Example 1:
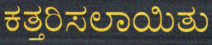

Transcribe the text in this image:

ಕತ್ತರಿಸಲಾಯಿತು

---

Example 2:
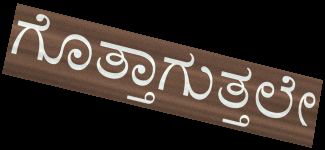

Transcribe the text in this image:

ಗೊತ್ತಾಗುತ್ತಲೇ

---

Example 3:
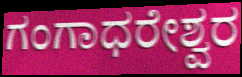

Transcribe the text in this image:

ಗಂಗಾಧರೇಶ್ವರ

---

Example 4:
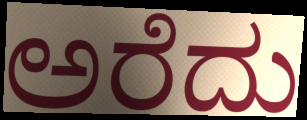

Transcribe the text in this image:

ಅರೆದು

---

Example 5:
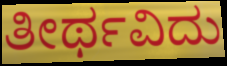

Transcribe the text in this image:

ತೀರ್ಥವಿದು